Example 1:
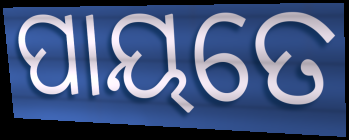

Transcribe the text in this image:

ପାୟତେ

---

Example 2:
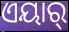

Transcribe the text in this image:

ଏୟାର୍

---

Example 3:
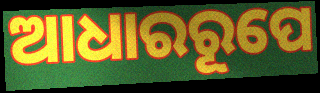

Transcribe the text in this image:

ଆଧାରରୂପେ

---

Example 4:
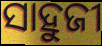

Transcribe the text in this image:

ସାହୁଜୀ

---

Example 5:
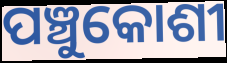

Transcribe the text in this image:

ପଞ୍ଚୁକୋଶୀ